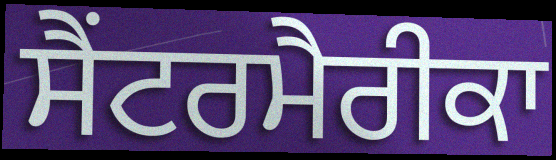
ਸੈਂਟਰਮੈਰੀਕਾ